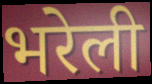
भरेली